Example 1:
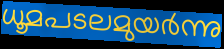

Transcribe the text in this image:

ധൂമപടലമുയർന്നു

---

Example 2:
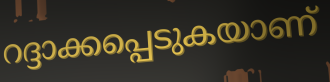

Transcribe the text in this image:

റദ്ദാക്കപ്പെടുകയാണ്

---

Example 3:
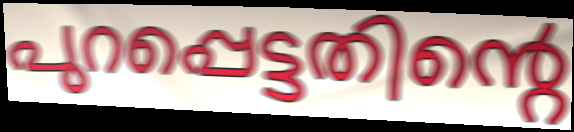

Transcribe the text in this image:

പുറപ്പെട്ടതിന്റെ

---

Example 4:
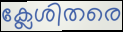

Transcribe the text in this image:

ക്ലേശിതരെ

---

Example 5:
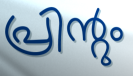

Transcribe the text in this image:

പ്രിന്റും